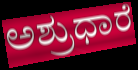
ಅಶ್ರುಧಾರೆ